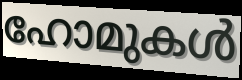
ഹോമുകൾ